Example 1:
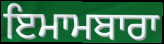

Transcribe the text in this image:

ਇਮਾਮਬਾਰਾ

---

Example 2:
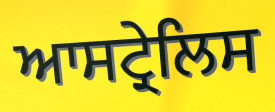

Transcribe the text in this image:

ਆਸਟ੍ਰੇਲਿਸ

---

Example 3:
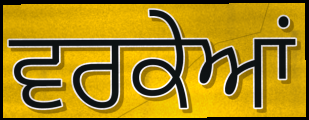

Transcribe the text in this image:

ਵਰਕੇਆਂ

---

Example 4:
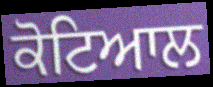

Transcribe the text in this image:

ਕੋਟਿਆਲ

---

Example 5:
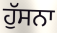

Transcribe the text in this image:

ਹੁੱਸਨਾ